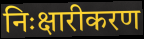
निःक्षारीकरण